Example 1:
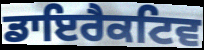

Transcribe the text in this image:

ਡਾਇਰੈਕਟਿਵ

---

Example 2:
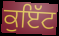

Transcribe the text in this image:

ਕੁਇੱਟ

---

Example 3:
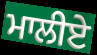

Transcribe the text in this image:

ਮਾਲੀਏ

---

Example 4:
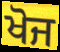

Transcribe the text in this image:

ਖੋਜ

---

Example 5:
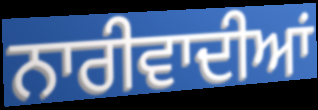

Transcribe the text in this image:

ਨਾਰੀਵਾਦੀਆਂ